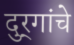
दुर्गांचे